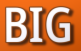
BIG